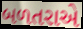
બળતરાએ